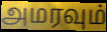
அமரவும்